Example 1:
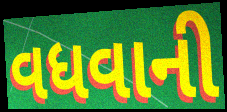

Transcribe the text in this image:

વધવાની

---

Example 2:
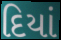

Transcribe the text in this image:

દિયાં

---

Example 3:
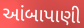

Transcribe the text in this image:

આંબાપાણી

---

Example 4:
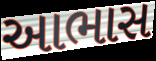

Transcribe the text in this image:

આભાસ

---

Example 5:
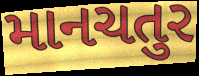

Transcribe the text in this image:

માનચતુર